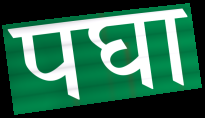
पघा